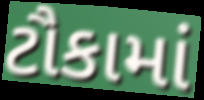
ટૌકામાં